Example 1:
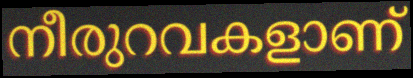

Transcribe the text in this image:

നീരുറവകളാണ്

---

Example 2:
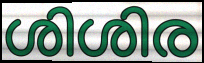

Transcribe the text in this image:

ശിശിര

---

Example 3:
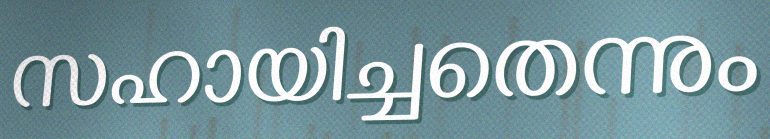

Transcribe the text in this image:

സഹായിച്ചതെന്നും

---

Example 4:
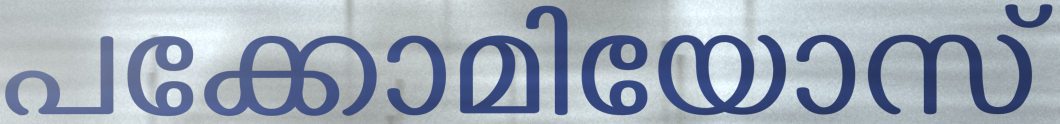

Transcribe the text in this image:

പക്കോമിയോസ്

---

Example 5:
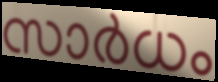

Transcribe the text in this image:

സാർധം